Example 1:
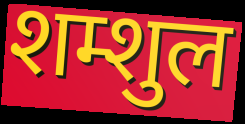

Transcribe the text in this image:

शम्शुल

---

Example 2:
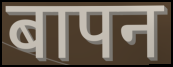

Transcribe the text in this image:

बापन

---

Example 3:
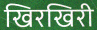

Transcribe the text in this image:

खिरखिरी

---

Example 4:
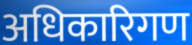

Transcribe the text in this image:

अधिकारिगण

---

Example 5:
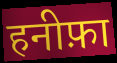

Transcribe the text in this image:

हनीफ़ा